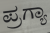
ಪ್ರಗ್ಯಾ